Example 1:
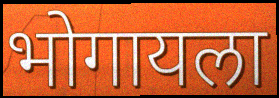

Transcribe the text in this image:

भोगायला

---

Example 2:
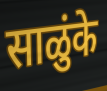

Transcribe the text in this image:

साळुंके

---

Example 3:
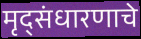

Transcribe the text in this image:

मृद्संधारणाचे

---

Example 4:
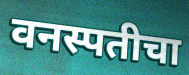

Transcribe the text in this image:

वनस्पतीचा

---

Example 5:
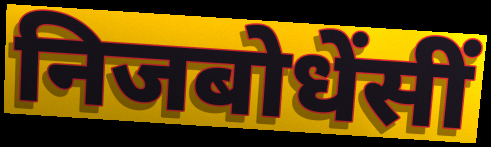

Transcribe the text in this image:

निजबोधेंसीं